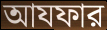
আযফার